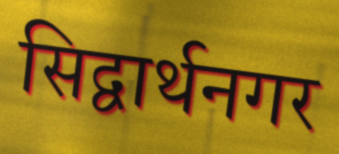
सिद्वार्थनगर